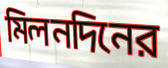
মিলনদিনের